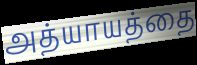
அத்யாயத்தை